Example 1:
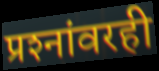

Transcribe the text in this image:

प्रश्नांवरही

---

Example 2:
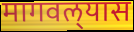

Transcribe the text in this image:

मागवल्यास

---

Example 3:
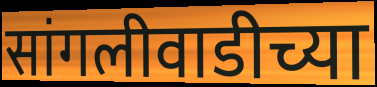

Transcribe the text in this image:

सांगलीवाडीच्या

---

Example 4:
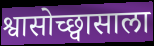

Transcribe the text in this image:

श्वासोच्छ्वासाला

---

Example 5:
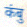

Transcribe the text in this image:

कंबु